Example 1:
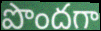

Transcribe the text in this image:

పొందగా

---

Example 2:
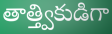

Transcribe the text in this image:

తాత్త్వికుడిగా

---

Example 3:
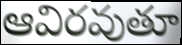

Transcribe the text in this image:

ఆవిరవుతూ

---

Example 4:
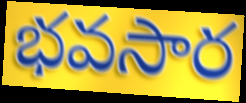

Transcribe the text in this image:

భవసార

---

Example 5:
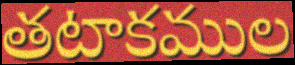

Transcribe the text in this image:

తటాకముల